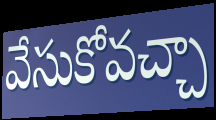
వేసుకోవచ్చా